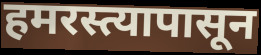
हमरस्त्यापासून